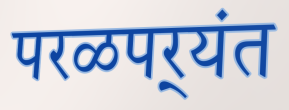
परळपर्यंत